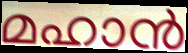
മഹാൻ